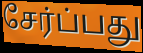
சேர்ப்பது